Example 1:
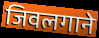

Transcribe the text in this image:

जिवलगाने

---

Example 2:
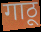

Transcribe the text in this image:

गाठू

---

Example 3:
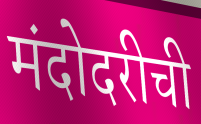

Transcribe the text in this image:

मंदोदरीची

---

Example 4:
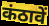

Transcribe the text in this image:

कंठावें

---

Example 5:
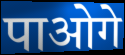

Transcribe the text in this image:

पाओगे